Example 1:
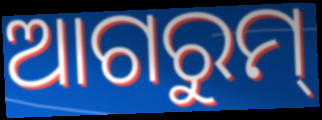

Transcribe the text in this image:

ଆଗରୁମ୍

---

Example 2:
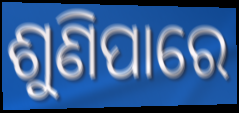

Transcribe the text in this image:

ଶୁଣିପାରେ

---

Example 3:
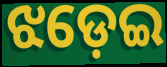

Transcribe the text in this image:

ଝଡ଼େଇ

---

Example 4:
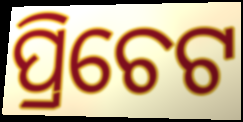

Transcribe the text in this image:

ପ୍ରିଚେଟ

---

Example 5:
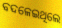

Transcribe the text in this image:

ବଦଳେଇଥିଲେ